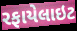
રફાયેલાઇટ